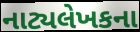
નાટ્યલેખકના